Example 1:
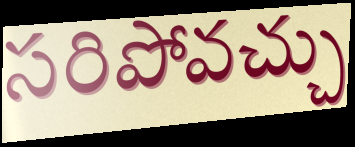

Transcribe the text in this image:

సరిపోవచ్చు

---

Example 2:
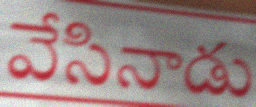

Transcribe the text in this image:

వేసినాడు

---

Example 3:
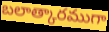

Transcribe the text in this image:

బలాత్కారముగా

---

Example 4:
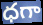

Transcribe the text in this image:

ధగా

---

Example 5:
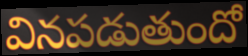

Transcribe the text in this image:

వినపడుతుందో